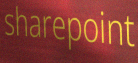
sharepoint